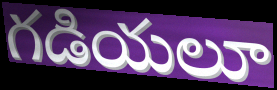
గడియలూ